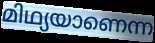
മിഥ്യയാണെന്ന